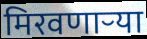
मिरवणाऱ्या